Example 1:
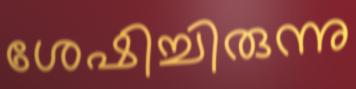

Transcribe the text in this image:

ശേഷിച്ചിരുന്നു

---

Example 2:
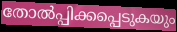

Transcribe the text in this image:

തോൽപ്പിക്കപ്പെടുകയും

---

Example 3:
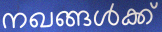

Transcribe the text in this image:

നഖങ്ങൾക്ക്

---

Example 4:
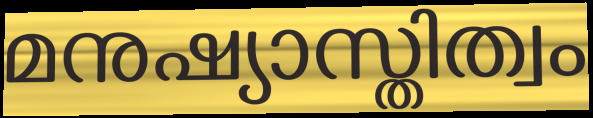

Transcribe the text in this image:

മനുഷ്യാസ്തിത്വം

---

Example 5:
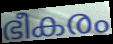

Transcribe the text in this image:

ഭീകരം